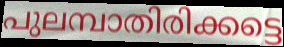
പുലമ്പാതിരിക്കട്ടെ